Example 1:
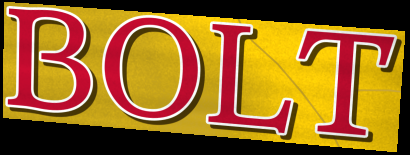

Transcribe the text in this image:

BOLT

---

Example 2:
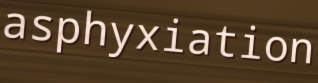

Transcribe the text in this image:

asphyxiation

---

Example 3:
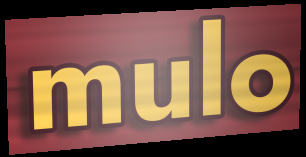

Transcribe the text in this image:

mulo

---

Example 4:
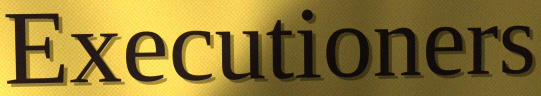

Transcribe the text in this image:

Executioners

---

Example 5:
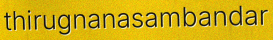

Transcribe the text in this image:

thirugnanasambandar